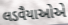
લડવૈયાઓએ